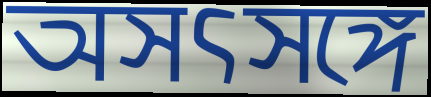
অসৎসঙ্গে